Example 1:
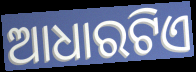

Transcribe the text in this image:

ଆଧାରଟିଏ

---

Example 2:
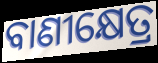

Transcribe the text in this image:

ବାଣୀକ୍ଷେତ୍ର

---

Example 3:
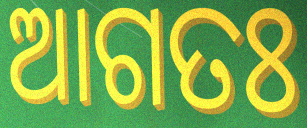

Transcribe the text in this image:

ଆଗତଃ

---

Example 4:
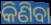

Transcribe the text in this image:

କିଣିବା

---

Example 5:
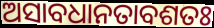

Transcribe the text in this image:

ଅସାବଧାନତାବଶତଃ